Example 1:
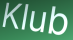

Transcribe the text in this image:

Klub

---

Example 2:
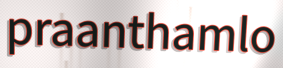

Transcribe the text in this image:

praanthamlo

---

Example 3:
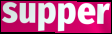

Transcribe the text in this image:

supper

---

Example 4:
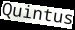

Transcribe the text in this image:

Quintus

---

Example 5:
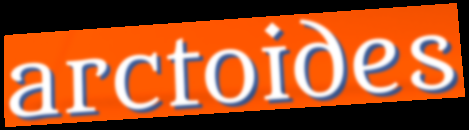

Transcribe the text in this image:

arctoides